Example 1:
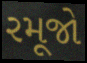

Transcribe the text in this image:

રમૂજો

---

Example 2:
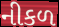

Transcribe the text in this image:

નીકળ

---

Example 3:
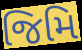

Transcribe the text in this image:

જિમિ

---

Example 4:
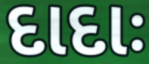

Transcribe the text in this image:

દાદાઃ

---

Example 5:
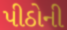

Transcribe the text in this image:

પીઠોની